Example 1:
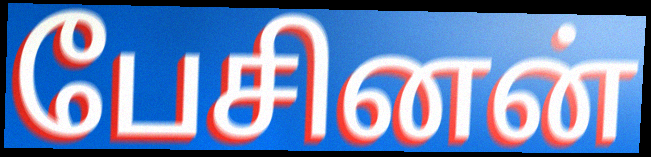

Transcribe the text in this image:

பேசினன்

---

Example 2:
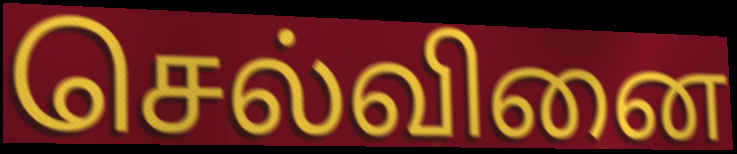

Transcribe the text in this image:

செல்வினை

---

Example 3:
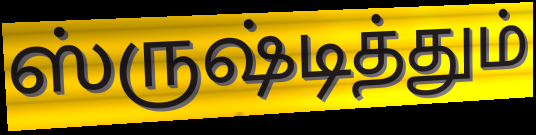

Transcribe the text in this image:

ஸ்ருஷ்டித்தும்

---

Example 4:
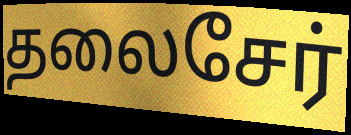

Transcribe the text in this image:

தலைசேர்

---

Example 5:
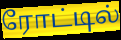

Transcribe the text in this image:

ரோட்டில்